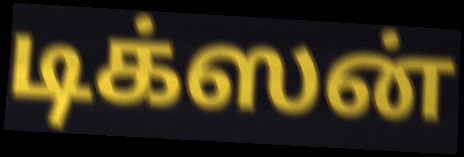
டிக்ஸன்